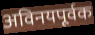
अविनयपूर्वक